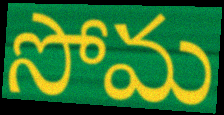
సోమ